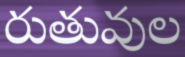
రుతువుల